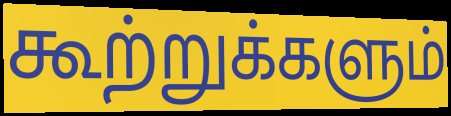
கூற்றுக்களும்